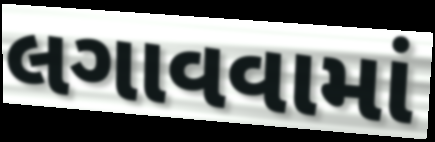
લગાવવામાં